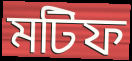
মটিফ